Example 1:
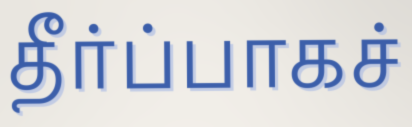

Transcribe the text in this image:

தீர்ப்பாகச்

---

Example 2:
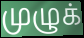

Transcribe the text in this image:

முழுக்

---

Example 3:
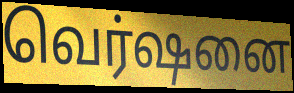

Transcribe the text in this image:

வெர்ஷனை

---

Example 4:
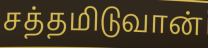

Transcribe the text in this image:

சத்தமிடுவான்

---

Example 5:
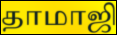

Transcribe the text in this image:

தாமாஜி